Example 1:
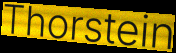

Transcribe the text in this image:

Thorstein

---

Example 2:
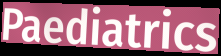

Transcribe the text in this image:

Paediatrics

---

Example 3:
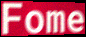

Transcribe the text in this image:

Fome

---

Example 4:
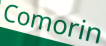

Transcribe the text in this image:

Comorin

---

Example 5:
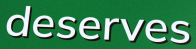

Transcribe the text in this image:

deserves